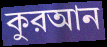
কুরআন